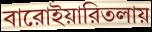
বারোইয়ারিতলায়